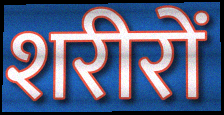
शरीरों